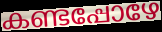
കണ്ടപ്പോഴേ